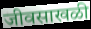
जीवसाखळी